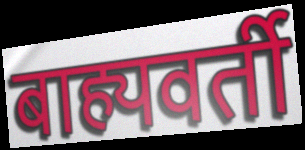
बाह्यवर्ती